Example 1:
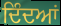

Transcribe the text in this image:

ਦਿੰਦਆਂ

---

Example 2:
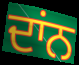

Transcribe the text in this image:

ਦਾਂਨ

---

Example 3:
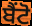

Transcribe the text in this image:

ਬੈਂਟੋ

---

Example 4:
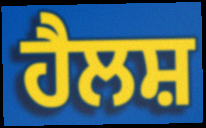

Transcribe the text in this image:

ਹੈਲਸ਼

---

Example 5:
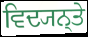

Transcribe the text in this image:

ਵਿਦ੍ਯਨ੍ਤੇ